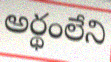
అర్థంలేని